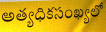
అత్యధికసంఖ్యలో